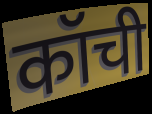
कॉची